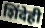
शिंदेही